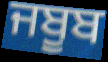
ਜਬੂਬ